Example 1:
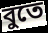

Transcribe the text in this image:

বুতে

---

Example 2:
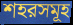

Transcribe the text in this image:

শহরসমূহ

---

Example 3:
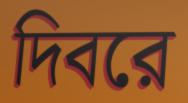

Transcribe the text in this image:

দিবরে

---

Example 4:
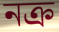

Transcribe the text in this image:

নক্র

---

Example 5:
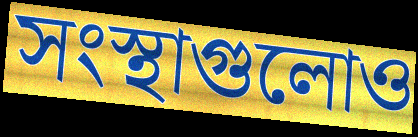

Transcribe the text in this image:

সংস্থাগুলোও